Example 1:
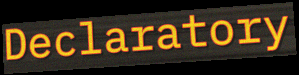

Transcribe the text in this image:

Declaratory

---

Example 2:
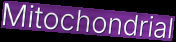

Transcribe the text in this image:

Mitochondrial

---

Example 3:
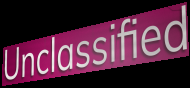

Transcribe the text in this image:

Unclassified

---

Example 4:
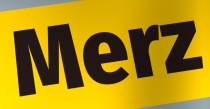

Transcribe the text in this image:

Merz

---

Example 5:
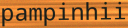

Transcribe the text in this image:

pampinhii